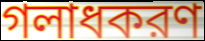
গলাধকরণ